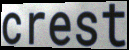
crest